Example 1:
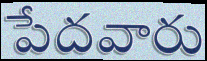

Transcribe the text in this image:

పేదవారు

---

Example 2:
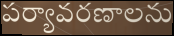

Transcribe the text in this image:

పర్యావరణాలను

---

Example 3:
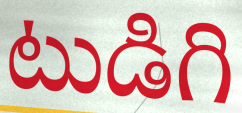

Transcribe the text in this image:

టుడిగి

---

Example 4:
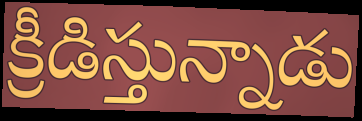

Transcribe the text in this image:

క్రీడిస్తున్నాడు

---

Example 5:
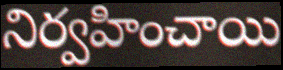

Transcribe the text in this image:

నిర్వహించాయి